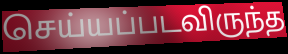
செய்யப்படவிருந்த